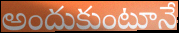
అందుకుంటూనే